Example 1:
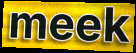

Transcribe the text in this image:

meek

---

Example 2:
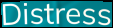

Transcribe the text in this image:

Distress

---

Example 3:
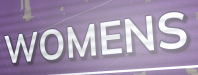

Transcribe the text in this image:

WOMENS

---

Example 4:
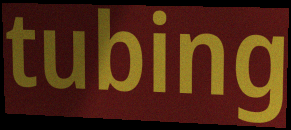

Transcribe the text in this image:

tubing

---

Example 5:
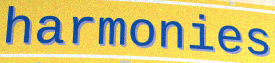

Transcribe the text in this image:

harmonies